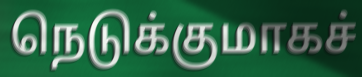
நெடுக்குமாகச்